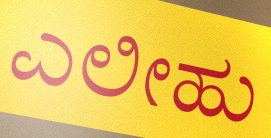
ಎಲೀಹು